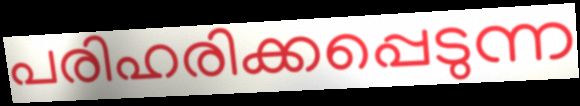
പരിഹരിക്കപ്പെടുന്ന